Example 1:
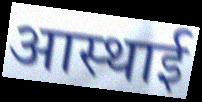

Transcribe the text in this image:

आस्थाई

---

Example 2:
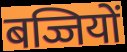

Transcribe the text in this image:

बज्जियों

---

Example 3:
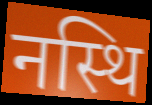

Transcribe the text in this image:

नस्थि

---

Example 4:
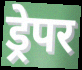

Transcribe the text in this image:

ड्रेपर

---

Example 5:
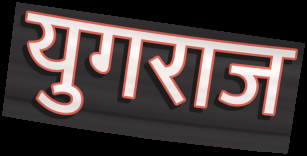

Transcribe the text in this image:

युगराज